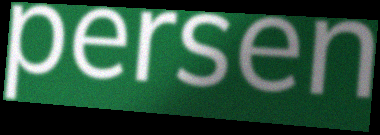
persen